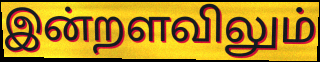
இன்றளவிலும்